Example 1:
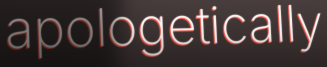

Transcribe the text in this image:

apologetically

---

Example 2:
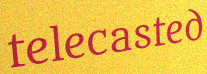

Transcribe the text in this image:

telecasted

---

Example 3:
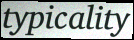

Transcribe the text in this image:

typicality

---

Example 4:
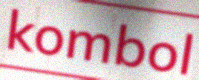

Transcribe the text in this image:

kombol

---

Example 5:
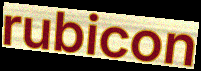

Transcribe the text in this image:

rubicon